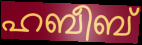
ഹബീബ്